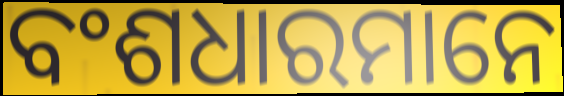
ବଂଶଧାରମାନେ